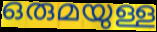
ഒരുമയുള്ള